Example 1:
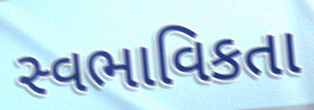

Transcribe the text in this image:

સ્વભાવિકતા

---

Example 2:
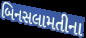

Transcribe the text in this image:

બિનસલામતીના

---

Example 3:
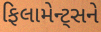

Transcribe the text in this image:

ફિલામેન્ટ્સને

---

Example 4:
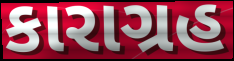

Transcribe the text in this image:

કારાગ્રહ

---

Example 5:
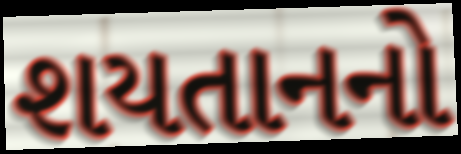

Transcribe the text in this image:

શયતાનનો